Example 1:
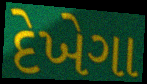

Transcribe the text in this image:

દેખેગા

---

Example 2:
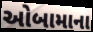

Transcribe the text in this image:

ઓબામાના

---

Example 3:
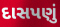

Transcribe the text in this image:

દાસપણું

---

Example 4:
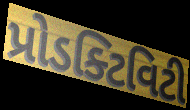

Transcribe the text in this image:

પ્રોડક્ટિવિટી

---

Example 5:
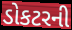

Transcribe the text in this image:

ડોકટરની